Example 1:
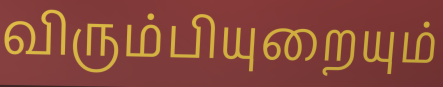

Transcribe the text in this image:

விரும்பியுறையும்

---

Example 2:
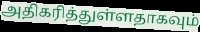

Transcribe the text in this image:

அதிகரித்துள்ளதாகவும்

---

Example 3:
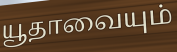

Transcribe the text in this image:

யூதாவையும்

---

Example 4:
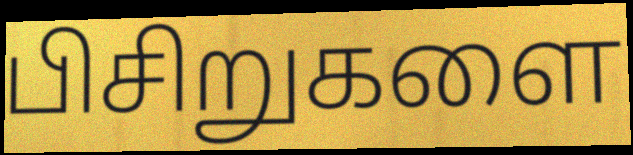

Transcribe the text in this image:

பிசிறுகளை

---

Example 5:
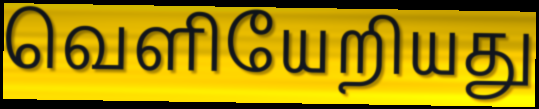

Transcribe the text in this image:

வெளியேறியது